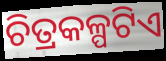
ଚିତ୍ରକଳ୍ପଟିଏ